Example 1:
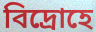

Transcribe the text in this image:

বিদ্রোহে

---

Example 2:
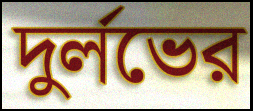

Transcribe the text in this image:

দুর্লভের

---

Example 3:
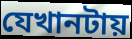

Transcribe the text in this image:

যেখানটায়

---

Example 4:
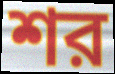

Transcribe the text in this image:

শর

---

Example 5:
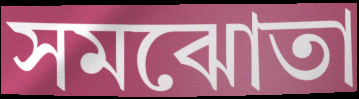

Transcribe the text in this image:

সমঝোতা